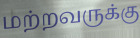
மற்றவருக்கு